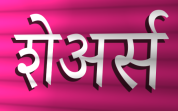
शेअर्स